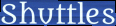
Shuttles